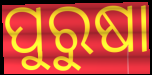
ପୁରୁଷା